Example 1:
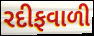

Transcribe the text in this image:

રદીફવાળી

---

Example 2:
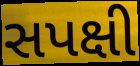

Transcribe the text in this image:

સપક્ષી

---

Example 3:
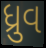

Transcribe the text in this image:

ધ્રુવ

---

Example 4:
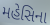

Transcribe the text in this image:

મહેસિના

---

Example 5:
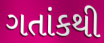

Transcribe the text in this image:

ગતાંકથી